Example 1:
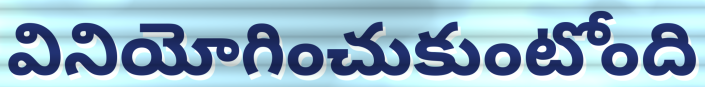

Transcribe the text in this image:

వినియోగించుకుంటోంది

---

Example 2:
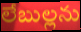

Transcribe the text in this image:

లేబుల్లను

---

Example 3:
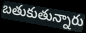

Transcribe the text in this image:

బతుకుతున్నారు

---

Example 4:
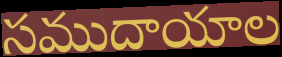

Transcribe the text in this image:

సముదాయాల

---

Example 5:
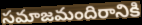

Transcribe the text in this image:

సమాజమందిరానికి